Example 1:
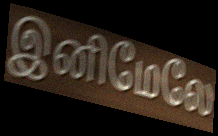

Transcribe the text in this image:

இனிமேலே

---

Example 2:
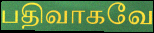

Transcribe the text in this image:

பதிவாகவே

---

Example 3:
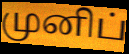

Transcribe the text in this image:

முனிப்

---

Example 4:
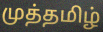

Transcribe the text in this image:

முத்தமிழ்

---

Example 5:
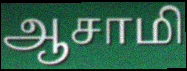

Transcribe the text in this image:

ஆசாமி